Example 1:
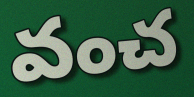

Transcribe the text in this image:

వంచ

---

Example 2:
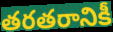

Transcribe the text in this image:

తరతరానికీ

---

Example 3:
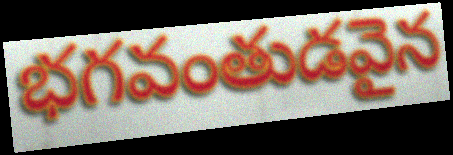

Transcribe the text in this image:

భగవంతుడవైన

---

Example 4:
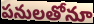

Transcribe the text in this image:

పనులతోనూ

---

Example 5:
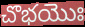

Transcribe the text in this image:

చొభయొః